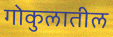
गोकुलातील